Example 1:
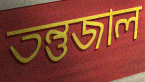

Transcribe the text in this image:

তন্তুজাল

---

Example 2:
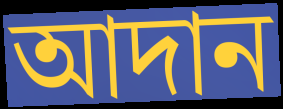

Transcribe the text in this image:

আদান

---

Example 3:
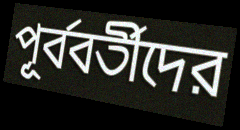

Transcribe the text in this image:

পূর্ববর্তীদের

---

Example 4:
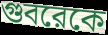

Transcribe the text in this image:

গুবরেকে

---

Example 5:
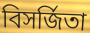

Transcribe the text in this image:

বিসর্জিতা